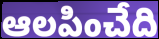
ఆలపించేది